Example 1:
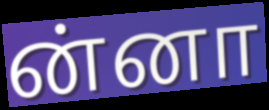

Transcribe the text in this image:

ன்னா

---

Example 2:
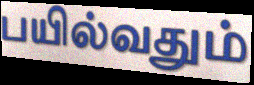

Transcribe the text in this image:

பயில்வதும்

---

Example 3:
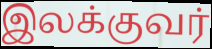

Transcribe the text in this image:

இலக்குவர்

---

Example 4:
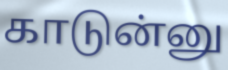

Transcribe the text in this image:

காடுன்னு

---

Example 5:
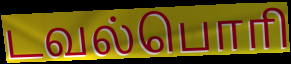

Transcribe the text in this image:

டவல்பொரி